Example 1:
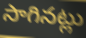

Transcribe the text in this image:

సాగినట్లు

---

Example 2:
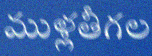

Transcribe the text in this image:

ముళ్లతీగల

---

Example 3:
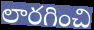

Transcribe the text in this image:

లారగించి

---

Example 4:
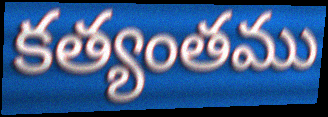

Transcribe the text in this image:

కత్యంతము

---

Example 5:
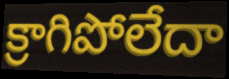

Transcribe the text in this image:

క్రాగిపోలేదా